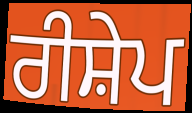
ਰੀਸ਼ੇਪ